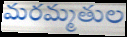
మరమ్మతుల